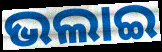
ଭଲାଇ